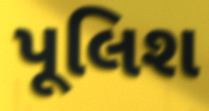
પૂલિશ